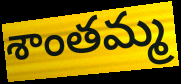
శాంతమ్మ